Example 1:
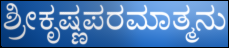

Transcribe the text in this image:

ಶ್ರೀಕೃಷ್ಣಪರಮಾತ್ಮನು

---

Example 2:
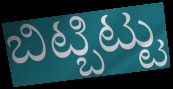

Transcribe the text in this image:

ಬಿಟ್ಬಿಟ್ಟು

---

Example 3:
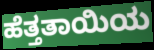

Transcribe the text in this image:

ಹೆತ್ತತಾಯಿಯ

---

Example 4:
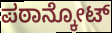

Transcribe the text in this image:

ಪಠಾನ್ಕೋಟ್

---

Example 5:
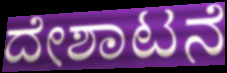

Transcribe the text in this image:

ದೇಶಾಟನೆ